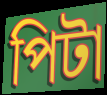
পিটা